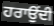
ਹਰਾਉਂਦੀ